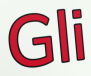
Gli